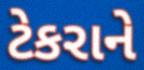
ટેકરાને